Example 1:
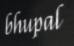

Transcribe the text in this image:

bhupal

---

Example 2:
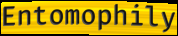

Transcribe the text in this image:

Entomophily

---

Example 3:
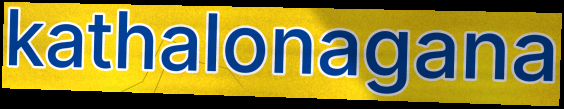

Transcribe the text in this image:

kathalonagana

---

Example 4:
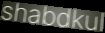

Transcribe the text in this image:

shabdkul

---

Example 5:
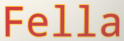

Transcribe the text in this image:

Fella